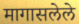
मागासलेले